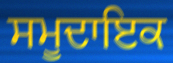
ਸਮੂਦਾਇਕ